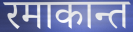
रमाकान्त